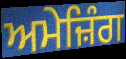
ਅਮੇਜ਼ਿੰਗ